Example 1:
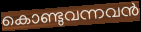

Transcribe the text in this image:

കൊണ്ടുവന്നവൻ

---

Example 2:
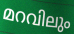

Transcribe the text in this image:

മറവിലും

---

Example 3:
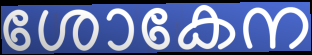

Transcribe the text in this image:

ശോകേന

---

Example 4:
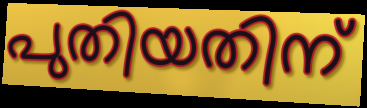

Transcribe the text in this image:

പുതിയതിന്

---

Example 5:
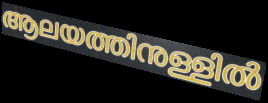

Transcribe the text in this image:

ആലയത്തിനുള്ളിൽ